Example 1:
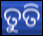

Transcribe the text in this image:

ତୁତି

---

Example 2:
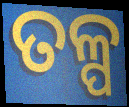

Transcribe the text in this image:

ତଳ୍ପ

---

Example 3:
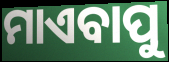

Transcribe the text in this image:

ମାଏବାପୁ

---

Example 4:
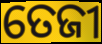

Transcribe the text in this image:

ତେଜୀ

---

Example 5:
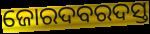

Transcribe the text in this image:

ଜୋରଦବରଦସ୍ତ